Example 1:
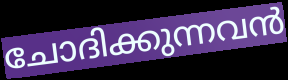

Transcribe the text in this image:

ചോദിക്കുന്നവൻ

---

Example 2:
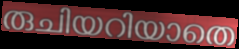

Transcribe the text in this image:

രുചിയറിയാതെ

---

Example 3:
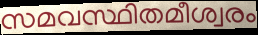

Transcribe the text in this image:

സമവസ്ഥിതമീശ്വരം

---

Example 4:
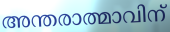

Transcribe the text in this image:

അന്തരാത്മാവിന്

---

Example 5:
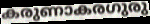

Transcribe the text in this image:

കരുണാകരഗുരു